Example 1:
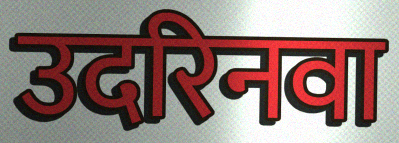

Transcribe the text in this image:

उदरिनवा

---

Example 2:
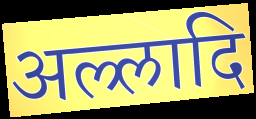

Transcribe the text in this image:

अल्लादि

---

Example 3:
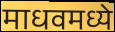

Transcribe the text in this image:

माधवमध्ये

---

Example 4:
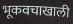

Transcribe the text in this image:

भूकवचाखाली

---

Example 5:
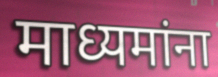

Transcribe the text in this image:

माध्यमांना